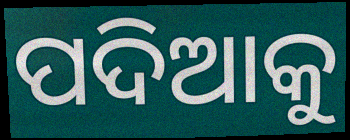
ପଦିଆକୁ